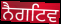
ਨੈਗਟਿਵ